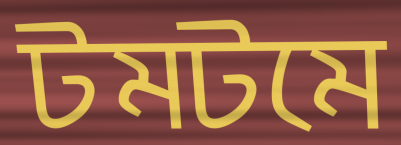
টমটমে